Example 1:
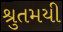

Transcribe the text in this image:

શ્રુતમયી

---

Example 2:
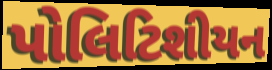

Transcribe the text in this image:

પોલિટિશીયન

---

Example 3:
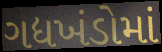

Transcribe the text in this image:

ગદ્યખંડોમાં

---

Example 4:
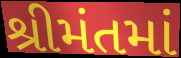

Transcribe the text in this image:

શ્રીમંતમાં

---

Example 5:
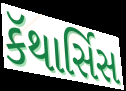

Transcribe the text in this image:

કૅથાર્સિસ